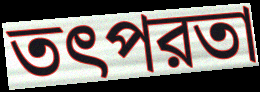
তৎপরতা